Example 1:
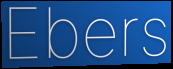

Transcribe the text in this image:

Ebers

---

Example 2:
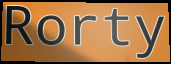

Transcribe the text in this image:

Rorty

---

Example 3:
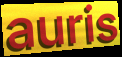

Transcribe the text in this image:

auris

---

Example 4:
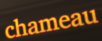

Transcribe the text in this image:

chameau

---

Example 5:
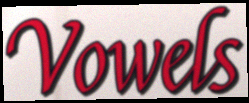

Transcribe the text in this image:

Vowels